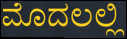
ಮೊದಲಲ್ಲಿ